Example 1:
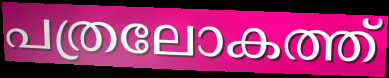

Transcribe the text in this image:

പത്രലോകത്ത്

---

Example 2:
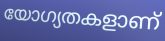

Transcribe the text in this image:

യോഗ്യതകളാണ്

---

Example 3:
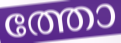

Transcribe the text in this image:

ത്തോ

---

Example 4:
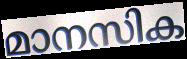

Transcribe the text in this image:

മാനസിക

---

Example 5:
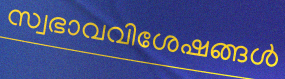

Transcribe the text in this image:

സ്വഭാവവിശേഷങ്ങൾ